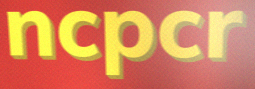
ncpcr